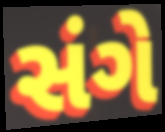
સંગે